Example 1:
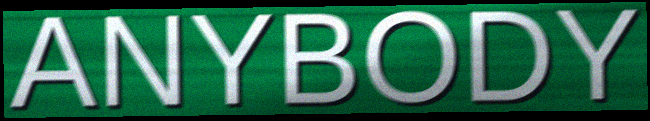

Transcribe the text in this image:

ANYBODY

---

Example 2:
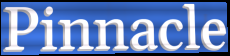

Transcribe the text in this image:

Pinnacle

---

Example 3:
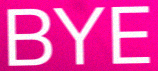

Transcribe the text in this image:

BYE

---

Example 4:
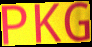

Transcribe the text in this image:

PKG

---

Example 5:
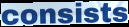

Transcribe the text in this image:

consists